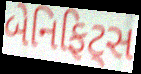
બેનિફિટ્સ